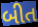
બીત